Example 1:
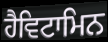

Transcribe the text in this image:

ਹੈਵਿਟਾਮਿਨ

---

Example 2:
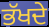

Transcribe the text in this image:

ਭੱਖਦੇ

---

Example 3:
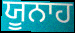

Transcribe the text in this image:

ਯੂਨਾਹ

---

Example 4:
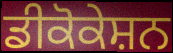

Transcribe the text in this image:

ਡੀਕੋਕੇਸ਼ਨ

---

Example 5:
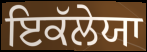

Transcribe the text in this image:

ਇਕੱਲੇਯਾ